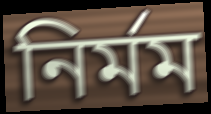
নিৰ্মম